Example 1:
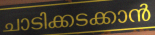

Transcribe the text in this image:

ചാടിക്കടക്കാൻ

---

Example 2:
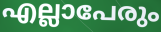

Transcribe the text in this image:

എല്ലാപേരും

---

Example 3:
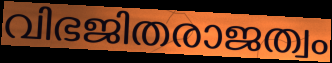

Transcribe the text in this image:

വിഭജിതരാജത്വം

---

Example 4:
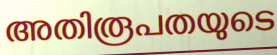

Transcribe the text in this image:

അതിരൂപതയുടെ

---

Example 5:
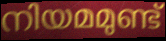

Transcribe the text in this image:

നിയമമുണ്ട്